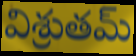
విశ్రుతమ్